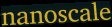
nanoscale